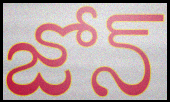
జోన్